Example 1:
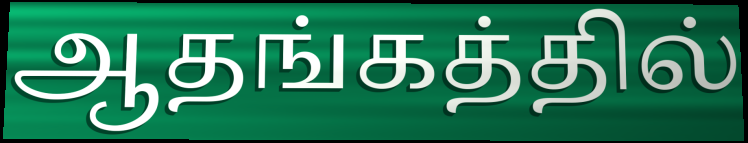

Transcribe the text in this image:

ஆதங்கத்தில்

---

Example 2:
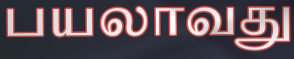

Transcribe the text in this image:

பயலாவது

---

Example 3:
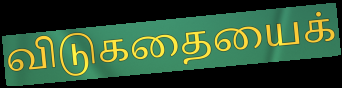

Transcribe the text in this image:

விடுகதையைக்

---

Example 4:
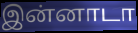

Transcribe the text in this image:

இன்னாடா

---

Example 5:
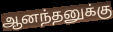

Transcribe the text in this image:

ஆனந்தனுக்கு